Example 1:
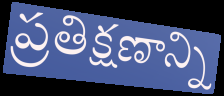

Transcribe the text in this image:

ప్రతిక్షణాన్ని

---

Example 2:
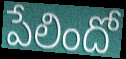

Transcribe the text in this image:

పేలిందో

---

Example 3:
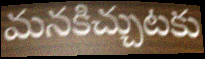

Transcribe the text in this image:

మనకిచ్చుటకు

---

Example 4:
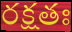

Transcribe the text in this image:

రక్షతః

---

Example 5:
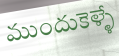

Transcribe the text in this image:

ముందుకెళ్ళే